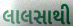
લાલસાથી